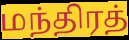
மந்திரத்